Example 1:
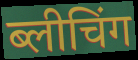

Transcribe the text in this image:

ब्लीचिंग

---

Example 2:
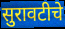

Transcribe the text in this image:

सुरावटीचे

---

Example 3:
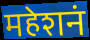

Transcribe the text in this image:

महेशनं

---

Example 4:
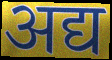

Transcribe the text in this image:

अद्य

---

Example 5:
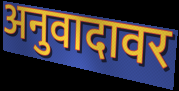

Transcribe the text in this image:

अनुवादावर